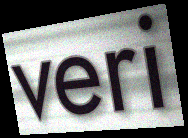
veri